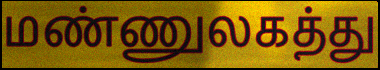
மண்ணுலகத்து